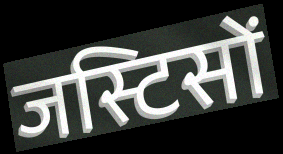
जस्टिसों